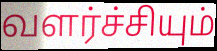
வளர்ச்சியும்